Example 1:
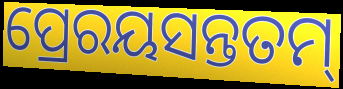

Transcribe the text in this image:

ପ୍ରେରୟସନ୍ତତମ୍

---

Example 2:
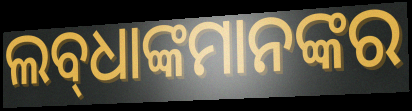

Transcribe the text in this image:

ଲବ୍‌ଧାଙ୍କମାନଙ୍କର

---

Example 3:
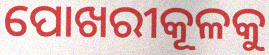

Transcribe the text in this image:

ପୋଖରୀକୂଳକୁ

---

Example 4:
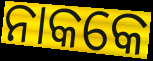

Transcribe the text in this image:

ନାକକେ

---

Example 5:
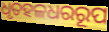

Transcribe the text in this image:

ଧୃତହଳଧରରୂପ